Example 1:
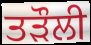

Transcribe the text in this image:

ਤੜੌਲੀ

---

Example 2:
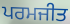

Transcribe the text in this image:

ਪਰਮਜੀਤ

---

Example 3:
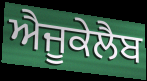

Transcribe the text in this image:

ਐਜੂਕੇਲੈਬ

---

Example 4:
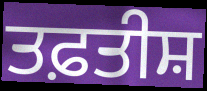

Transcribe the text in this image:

ਤਫ਼ਤੀਸ਼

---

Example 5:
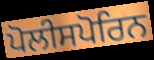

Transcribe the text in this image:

ਪੋਲੀਸਪੋਰਿਨ